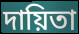
দায়িতা